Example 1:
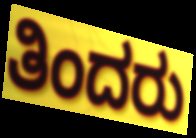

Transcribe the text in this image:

ತಿಂದರು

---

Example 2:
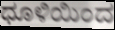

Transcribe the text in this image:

ಧೂಳಿಯಿಂದ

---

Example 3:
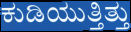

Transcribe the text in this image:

ಕುಡಿಯುತ್ತಿತ್ತು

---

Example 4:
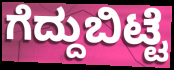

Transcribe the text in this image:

ಗೆದ್ದುಬಿಟ್ಟೆ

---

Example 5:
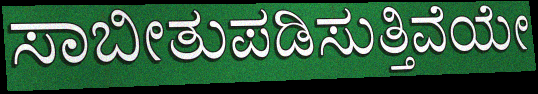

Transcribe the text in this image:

ಸಾಬೀತುಪಡಿಸುತ್ತಿವೆಯೇ